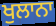
ਖੁਲਾਨਾ